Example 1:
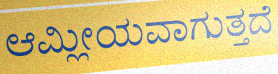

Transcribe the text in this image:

ಆಮ್ಲೀಯವಾಗುತ್ತದೆ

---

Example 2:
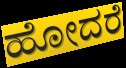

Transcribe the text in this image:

ಹೋದರೆ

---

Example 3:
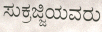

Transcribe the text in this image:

ಸುಕ್ರಜ್ಜಿಯವರು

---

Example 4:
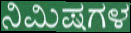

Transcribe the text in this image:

ನಿಮಿಷಗಳ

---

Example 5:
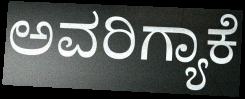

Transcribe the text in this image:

ಅವರಿಗ್ಯಾಕೆ